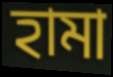
হামা